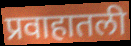
प्रवाहातली